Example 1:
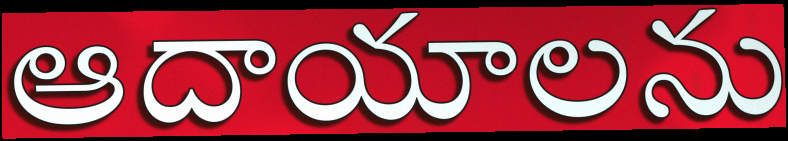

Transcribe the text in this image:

ఆదాయాలను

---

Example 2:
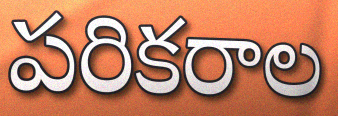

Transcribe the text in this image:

పరికరాల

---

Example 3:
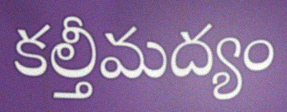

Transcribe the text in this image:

కల్తీమద్యం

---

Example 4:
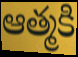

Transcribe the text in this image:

ఆత్మకి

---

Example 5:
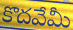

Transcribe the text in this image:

కొదవేమీ